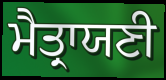
ਮੈਤ੍ਰਾਯਣੀ